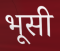
भूसी